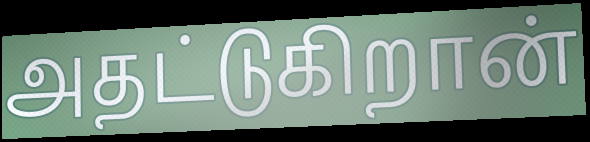
அதட்டுகிறான்